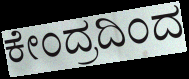
ಕೇಂದ್ರದಿಂದ